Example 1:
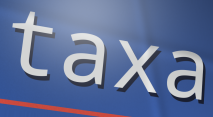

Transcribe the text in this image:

taxa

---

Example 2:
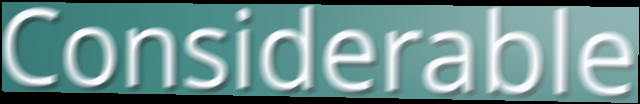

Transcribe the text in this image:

Considerable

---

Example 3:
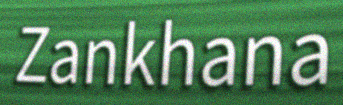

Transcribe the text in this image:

Zankhana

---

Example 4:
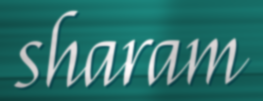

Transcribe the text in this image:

sharam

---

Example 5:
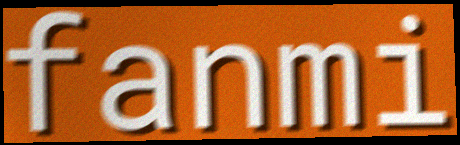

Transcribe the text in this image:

fanmi